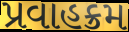
પ્રવાહક્રમ